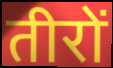
तीरों